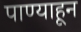
पाण्याहून